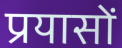
प्रयासों